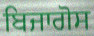
ਬਿਜਾਗੋਸ